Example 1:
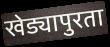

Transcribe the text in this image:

खेड्यापुरता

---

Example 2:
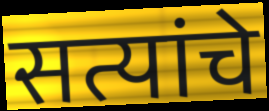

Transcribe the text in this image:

सत्यांचे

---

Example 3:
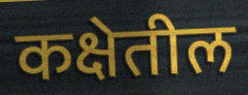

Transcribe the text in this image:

कक्षेतील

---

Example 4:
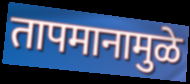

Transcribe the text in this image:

तापमानामुळे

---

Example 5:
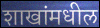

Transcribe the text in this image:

शाखांमधील